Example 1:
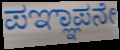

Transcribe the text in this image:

ಪಞ್ಞಾಪನೇ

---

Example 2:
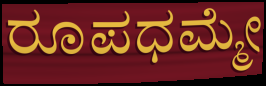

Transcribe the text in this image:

ರೂಪಧಮ್ಮೇ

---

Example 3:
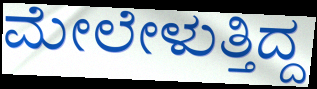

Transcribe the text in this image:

ಮೇಲೇಳುತ್ತಿದ್ದ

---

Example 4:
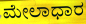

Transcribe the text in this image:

ಮೇಲಾಧಾರ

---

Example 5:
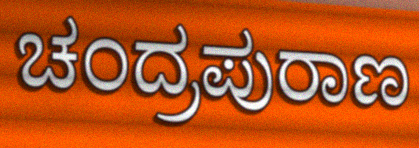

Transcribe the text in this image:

ಚಂದ್ರಪುರಾಣ